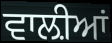
ਵਾਲ਼ੀਆਂ